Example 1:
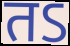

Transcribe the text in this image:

तऽ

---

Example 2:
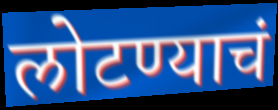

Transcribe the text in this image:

लोटण्याचं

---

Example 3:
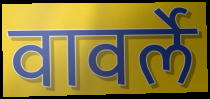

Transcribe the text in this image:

वावर्ले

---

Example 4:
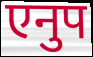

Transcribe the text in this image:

एनुप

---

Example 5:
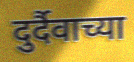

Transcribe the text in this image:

दुर्दैवाच्या